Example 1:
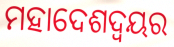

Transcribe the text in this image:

ମହାଦେଶଦ୍ଵୟର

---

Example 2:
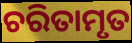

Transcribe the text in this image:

ଚରିତାମୃତ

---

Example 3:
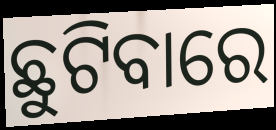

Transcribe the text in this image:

ଛୁଟିବାରେ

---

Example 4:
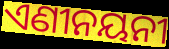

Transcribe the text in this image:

ଏଣୀନୟନୀ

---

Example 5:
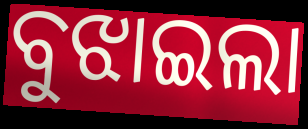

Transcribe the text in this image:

ବୁଝାଇଲା